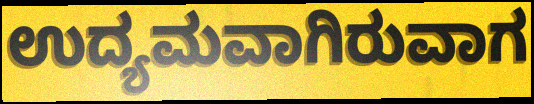
ಉದ್ಯಮವಾಗಿರುವಾಗ